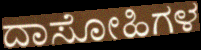
ದಾಸೋಹಿಗಳ